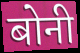
बोनी